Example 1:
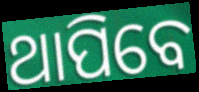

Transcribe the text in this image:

ଥାପିବେ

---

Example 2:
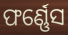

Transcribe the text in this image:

ଫର୍ଣ୍ଣେସ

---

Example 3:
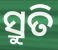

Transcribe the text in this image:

ସ୍ରୁତି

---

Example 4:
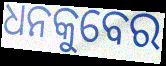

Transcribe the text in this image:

ଧନକୁବେର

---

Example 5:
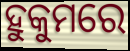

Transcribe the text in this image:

ହୁକୁମରେ